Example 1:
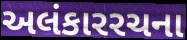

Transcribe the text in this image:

અલંકારરચના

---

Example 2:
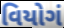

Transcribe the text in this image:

વિયોગં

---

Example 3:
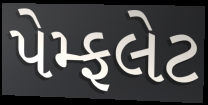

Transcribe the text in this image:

પેમ્ફલેટ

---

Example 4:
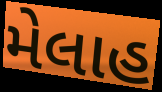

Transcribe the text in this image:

મેલાહ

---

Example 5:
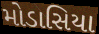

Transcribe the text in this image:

મોડાસિયા